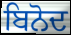
ਬਿਨੋਦ